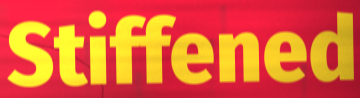
Stiffened